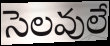
సెలవులే